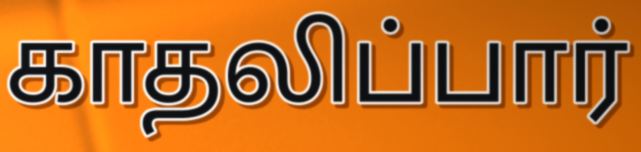
காதலிப்பார்